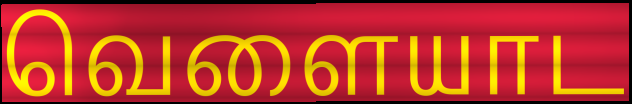
வெளையாட